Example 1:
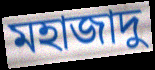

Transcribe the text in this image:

মহাজাদু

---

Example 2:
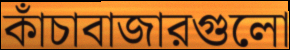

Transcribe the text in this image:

কাঁচাবাজারগুলো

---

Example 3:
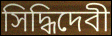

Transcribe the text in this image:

সিদ্ধিদেবী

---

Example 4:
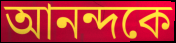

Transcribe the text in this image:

আনন্দকে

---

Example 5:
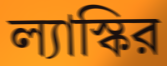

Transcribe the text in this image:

ল্যাস্কির